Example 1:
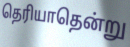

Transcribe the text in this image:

தெரியாதென்று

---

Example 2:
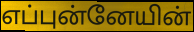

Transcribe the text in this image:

எப்புன்னேயின்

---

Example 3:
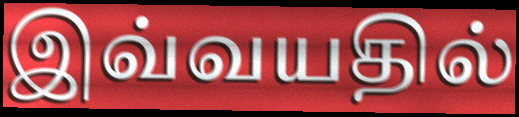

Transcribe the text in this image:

இவ்வயதில்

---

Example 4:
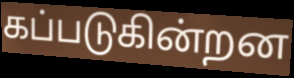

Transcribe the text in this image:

கப்படுகின்றன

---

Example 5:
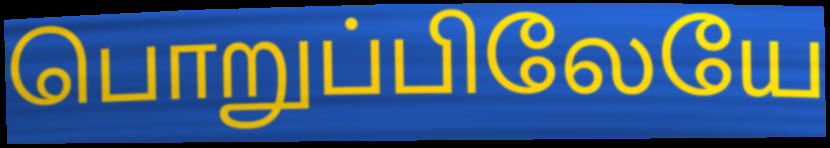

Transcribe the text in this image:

பொறுப்பிலேயே